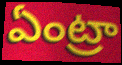
ఏంట్రా